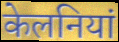
केलनियां